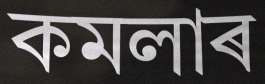
কমলাৰ